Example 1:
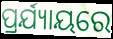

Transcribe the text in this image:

ପ୍ରର୍ଯ୍ୟାୟରେ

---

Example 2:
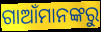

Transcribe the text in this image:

ଗାଆଁମାନଙ୍କରୁ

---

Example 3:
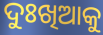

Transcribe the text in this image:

ଦୁଃଖିଆକୁ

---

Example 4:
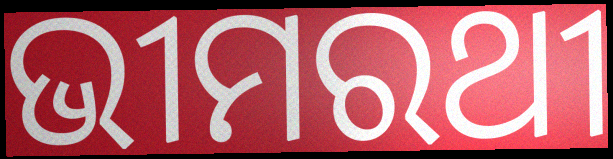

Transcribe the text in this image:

ଭୀମରଥୀ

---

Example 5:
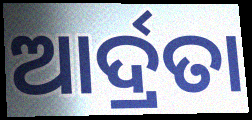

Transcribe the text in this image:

ଆର୍ଦ୍ରତା